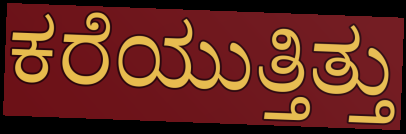
ಕರೆಯುತ್ತಿತ್ತು